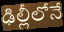
ఢిల్లీలోనే